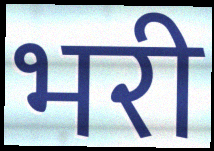
भरी